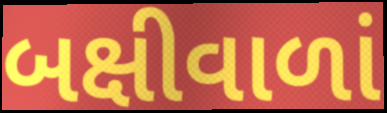
બક્ષીવાળાં